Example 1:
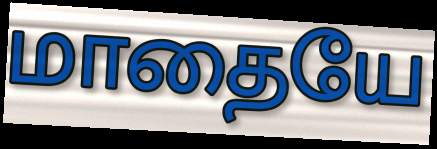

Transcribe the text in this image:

மாதையே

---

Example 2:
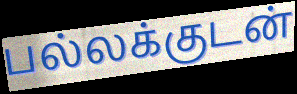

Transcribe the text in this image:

பல்லக்குடன்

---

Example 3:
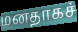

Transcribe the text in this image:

மனதாகச்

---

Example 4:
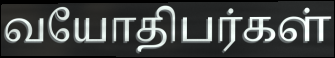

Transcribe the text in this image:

வயோதிபர்கள்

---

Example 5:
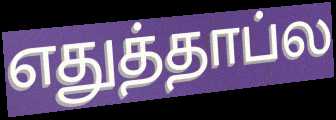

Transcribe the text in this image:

எதுத்தாப்ல